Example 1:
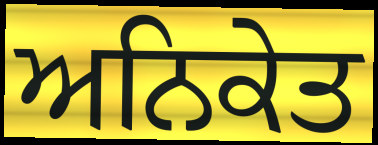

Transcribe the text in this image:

ਅਨਿਕੇਤ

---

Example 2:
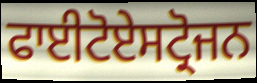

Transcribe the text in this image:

ਫਾਈਟੋਏਸਟ੍ਰੋਜਨ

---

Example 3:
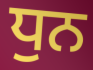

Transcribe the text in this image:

ਧੁਨ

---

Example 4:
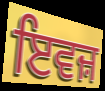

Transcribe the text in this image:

ਇਵਜ਼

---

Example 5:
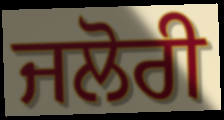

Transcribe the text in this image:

ਜਲੋਰੀ